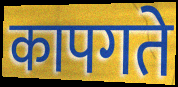
कापगते